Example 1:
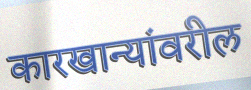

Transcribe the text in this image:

कारखान्यांवरील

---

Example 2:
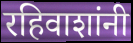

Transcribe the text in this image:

रहिवाशांनी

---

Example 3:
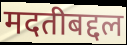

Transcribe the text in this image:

मदतीबद्दल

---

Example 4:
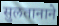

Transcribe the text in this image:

सुलतानाने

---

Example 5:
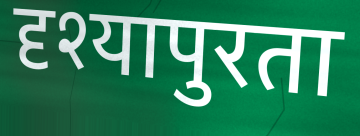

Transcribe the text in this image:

दृश्यापुरता